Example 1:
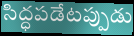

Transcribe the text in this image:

సిద్ధపడేటప్పుడు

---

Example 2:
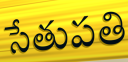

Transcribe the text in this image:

సేతుపతి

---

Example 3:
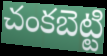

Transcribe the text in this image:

చంకబెట్టి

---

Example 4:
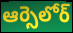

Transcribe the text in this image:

ఆర్సెలోర్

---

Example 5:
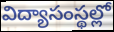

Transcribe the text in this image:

విద్యాసంస్థల్లో